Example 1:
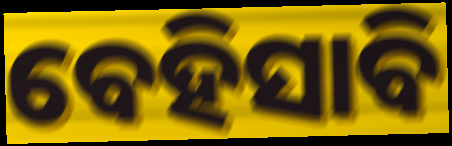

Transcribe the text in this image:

ବେହିସାବି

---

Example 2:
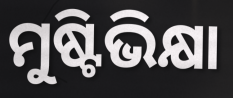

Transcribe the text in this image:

ମୁଷ୍ଟିଭିକ୍ଷା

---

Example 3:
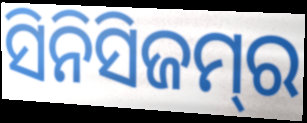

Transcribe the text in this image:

ସିନିସିଜମ୍‌ର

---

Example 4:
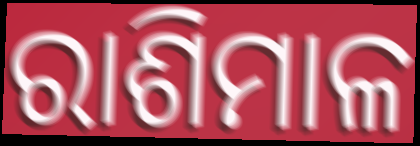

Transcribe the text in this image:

ରାଶିମାଳ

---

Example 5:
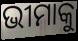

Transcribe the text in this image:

ଭୀମାକୁ